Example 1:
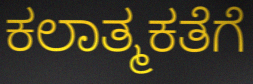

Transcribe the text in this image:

ಕಲಾತ್ಮಕತೆಗೆ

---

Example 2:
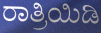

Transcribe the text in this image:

ರಾತ್ರಿಯಿಡಿ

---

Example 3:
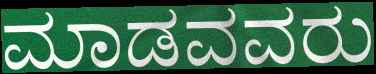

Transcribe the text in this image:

ಮಾಡವವರು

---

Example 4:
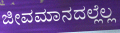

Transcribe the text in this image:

ಜೀವಮಾನದಲ್ಲೆಲ್ಲ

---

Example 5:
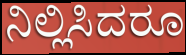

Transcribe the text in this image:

ನಿಲ್ಲಿಸಿದರೂ